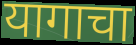
यागाचा